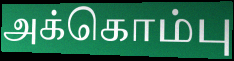
அக்கொம்பு